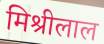
मिश्रीलाल